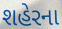
શહેરના